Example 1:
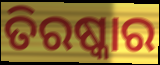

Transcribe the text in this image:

ତିରଷ୍କାର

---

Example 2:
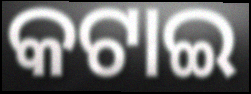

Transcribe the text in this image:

କଟାଇ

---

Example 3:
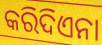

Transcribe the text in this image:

କରିଦିଏନା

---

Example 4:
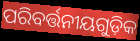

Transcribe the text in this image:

ପରିବର୍ତ୍ତନୀୟଗୁଡ଼ିକ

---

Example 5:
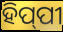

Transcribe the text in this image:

ହିପ୍‍ପୀ